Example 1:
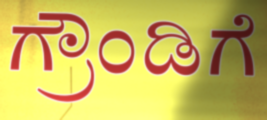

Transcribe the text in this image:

ಗ್ರೌಂಡಿಗೆ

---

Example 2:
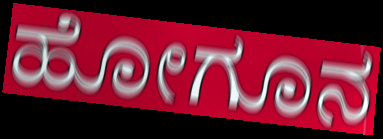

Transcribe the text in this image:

ಹೋಗೂನ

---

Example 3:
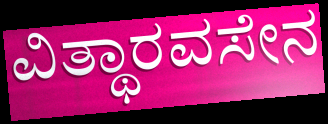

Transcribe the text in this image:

ವಿತ್ಥಾರವಸೇನ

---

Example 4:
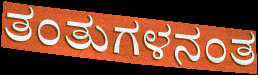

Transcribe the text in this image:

ತಂತುಗಳನಂತ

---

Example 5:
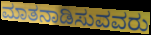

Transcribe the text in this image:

ಮಾತನಾಡಿಸುವವರು